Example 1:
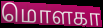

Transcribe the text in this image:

மொளகா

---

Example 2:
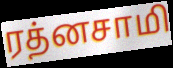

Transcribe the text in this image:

ரத்னசாமி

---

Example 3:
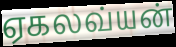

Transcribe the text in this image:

ஏகலவ்யன்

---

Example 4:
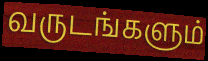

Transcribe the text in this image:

வருடங்களும்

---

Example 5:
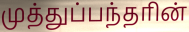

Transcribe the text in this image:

முத்துப்பந்தரின்